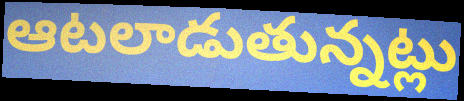
ఆటలాడుతున్నట్లు